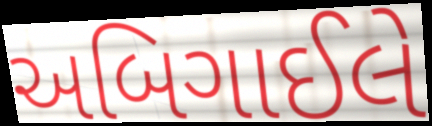
અબિગાઈલે